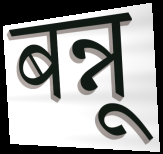
बन्नू